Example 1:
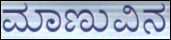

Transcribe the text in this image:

ಮಾಣುವಿನ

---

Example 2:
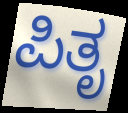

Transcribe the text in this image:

ಪಿತೃ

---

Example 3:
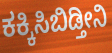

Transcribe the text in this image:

ಕಕ್ಕಿಸಿಬಿಡ್ತೀನಿ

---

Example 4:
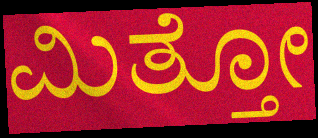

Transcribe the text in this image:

ಮಿತ್ತೋ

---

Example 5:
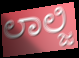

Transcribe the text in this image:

ಲಾಲ್ಜಿ